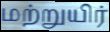
மற்றுயிர்